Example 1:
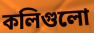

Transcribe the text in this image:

কলিগুলো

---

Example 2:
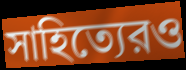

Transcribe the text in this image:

সাহিত্যেরও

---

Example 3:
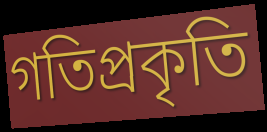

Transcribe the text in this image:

গতিপ্রকৃতি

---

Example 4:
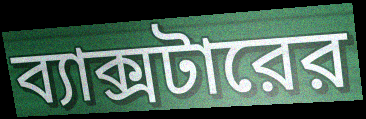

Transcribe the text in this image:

ব্যাক্সটারের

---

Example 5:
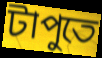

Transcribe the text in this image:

টাপুতে